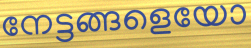
നേട്ടങ്ങളെയോ